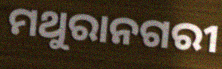
ମଥୁରାନଗରୀ